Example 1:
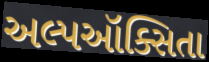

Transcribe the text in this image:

અલ્પઑક્સિતા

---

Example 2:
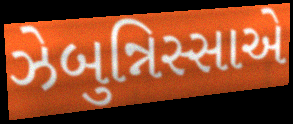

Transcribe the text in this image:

ઝેબુન્નિસ્સાએ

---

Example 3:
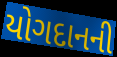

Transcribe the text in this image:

યોગદાનની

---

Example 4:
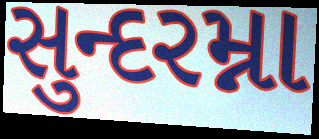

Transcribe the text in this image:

સુન્દરમ્ના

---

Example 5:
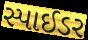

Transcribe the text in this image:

સ્પાઈડર